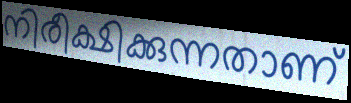
നിരീക്ഷിക്കുന്നതാണ്